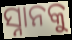
ସ୍ନାନକୁ